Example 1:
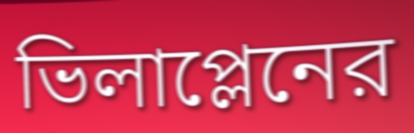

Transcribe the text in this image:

ভিলাপ্লেনের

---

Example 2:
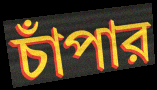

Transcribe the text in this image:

চাঁপার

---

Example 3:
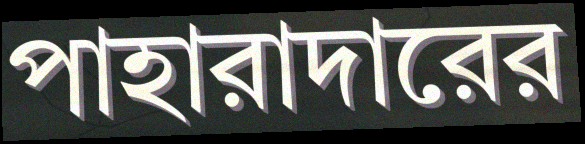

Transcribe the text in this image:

পাহারাদারের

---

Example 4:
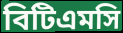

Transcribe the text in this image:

বিটিএমসি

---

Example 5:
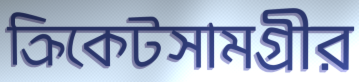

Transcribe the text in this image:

ক্রিকেটসামগ্রীর